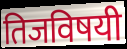
तिजविषयी